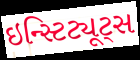
ઇન્સ્ટિટ્યૂટ્સ